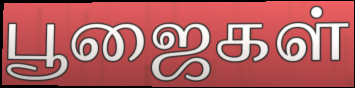
பூஜைகள்